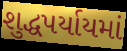
શુદ્ધપર્યાયમાં